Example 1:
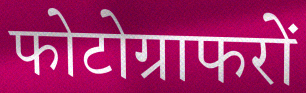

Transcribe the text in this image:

फोटोग्राफरों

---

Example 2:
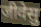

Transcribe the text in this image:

जीवेसु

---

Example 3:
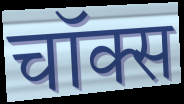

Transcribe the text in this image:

चॉक्स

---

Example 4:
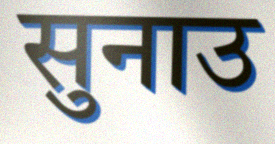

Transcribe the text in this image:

सुनाउ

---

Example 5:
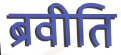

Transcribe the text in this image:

ब्रवीति